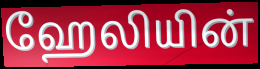
ஹேலியின்